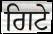
ਗਿਟੇ